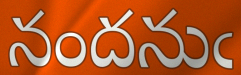
నందనుఁ